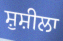
ਸ਼ੁਸ਼ੀਲਾ